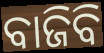
ବାଜିବି